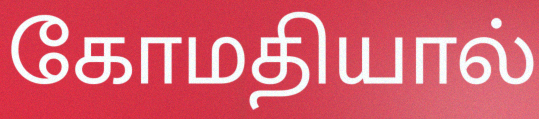
கோமதியால்